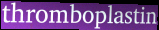
thromboplastin